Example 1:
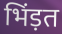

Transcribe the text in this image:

भिंड़त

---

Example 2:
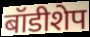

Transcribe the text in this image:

बॉडीशेप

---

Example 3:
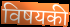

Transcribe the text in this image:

विषयकी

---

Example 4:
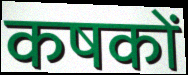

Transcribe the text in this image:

कषकों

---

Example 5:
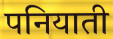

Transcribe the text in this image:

पनियाती